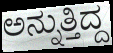
ಅನ್ನುತ್ತಿದ್ದ